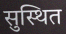
सुस्थित